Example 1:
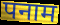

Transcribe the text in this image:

पनाम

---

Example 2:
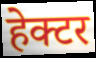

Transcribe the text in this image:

हेक्टर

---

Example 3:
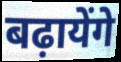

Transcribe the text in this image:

बढ़ायेंगे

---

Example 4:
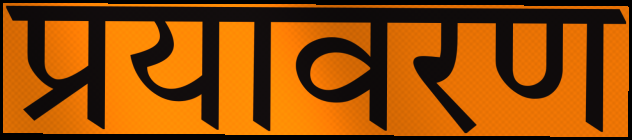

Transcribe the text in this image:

प्रयावरण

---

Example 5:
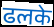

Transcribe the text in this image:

ढलके